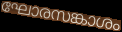
ഘോരസങ്കാശം